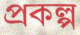
প্রকল্প